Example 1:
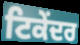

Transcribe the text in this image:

ਟਿਕੇਂਦਰ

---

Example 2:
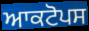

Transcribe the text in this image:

ਆਕਟੋਪਸ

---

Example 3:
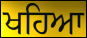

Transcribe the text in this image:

ਖਹਿਆ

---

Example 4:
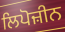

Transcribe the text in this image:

ਲਿਪੋਜ਼ੀਨ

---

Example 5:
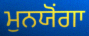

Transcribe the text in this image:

ਮੁਨਯੋਂਗਾ